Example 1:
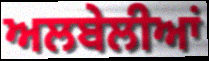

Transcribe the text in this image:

ਅਲਬੇਲੀਆਂ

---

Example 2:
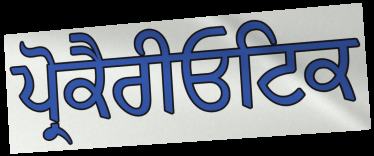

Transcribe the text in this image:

ਪ੍ਰੋਕੈਰੀਓਟਿਕ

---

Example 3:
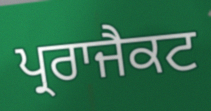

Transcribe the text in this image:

ਪ੍ਰਰਾਜੈਕਟ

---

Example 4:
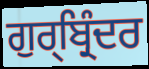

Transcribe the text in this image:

ਗੁਰ੍ਬ੍ਰਿੰਦਰ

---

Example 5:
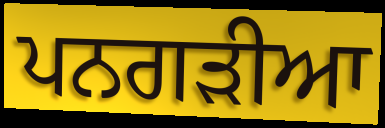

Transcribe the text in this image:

ਪਨਗੜੀਆ